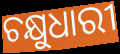
ଚକ୍ଷୁଧାରୀ